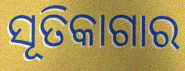
ସୂତିକାଗାର